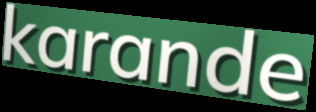
karande